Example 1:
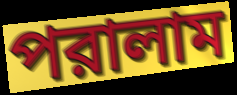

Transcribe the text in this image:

পরালাম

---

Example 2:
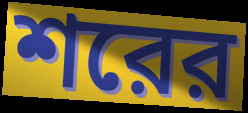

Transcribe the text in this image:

শরের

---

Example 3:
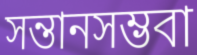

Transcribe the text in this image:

সন্তানসম্ভবা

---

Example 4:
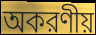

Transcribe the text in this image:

অকরণীয়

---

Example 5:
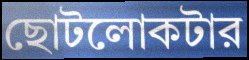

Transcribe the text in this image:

ছোটলোকটার